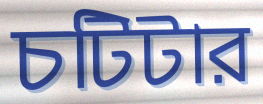
চটিটার